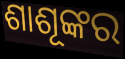
ଶାଶୂଙ୍କର